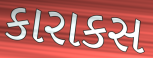
કારાકસ